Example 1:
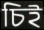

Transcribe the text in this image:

চিই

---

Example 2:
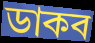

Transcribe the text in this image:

ডাকব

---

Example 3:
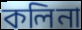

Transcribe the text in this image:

কলিনা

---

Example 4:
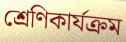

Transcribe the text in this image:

শ্রেণিকার্যক্রম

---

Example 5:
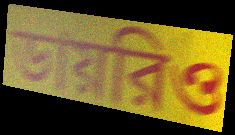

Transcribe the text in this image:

ডায়রিও